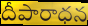
దీపారాధన